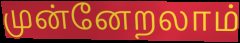
முன்னேறலாம்